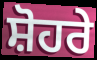
ਸ਼ੋਹਰੇ